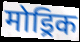
मोड्रिक